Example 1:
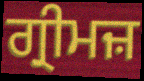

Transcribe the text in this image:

ਗ੍ਰੀਮਜ਼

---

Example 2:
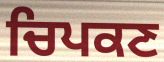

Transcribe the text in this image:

ਚਿਪਕਣ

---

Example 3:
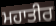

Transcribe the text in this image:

ਮਹਾਤੀਰ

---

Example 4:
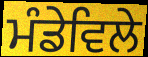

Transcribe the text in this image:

ਮੰਡੇਵਿਲੇ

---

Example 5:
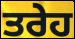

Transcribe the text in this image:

ਤਰੇਹ